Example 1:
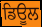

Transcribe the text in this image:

ਡਿਊਲ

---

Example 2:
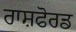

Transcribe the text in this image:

ਰਾਸ਼ਫੋਰਡ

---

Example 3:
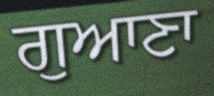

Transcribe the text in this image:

ਗੁਆਣਾ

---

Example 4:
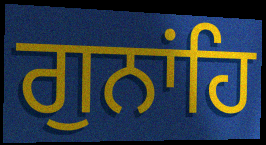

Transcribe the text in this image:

ਗੁਨਾਂਹਿ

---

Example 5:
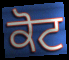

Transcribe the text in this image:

ਕੋਟ